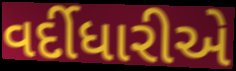
વર્દીધારીએ